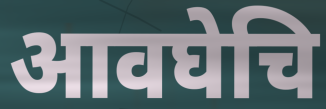
आवघेचि